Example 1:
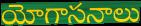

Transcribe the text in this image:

యోగాసనాలు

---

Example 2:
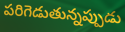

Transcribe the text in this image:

పరిగెడుతున్నప్పుడు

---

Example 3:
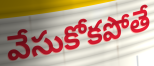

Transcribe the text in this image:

వేసుకోకపోతే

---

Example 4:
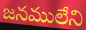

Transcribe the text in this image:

జనములేని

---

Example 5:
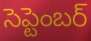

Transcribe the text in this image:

సెప్టెంబర్